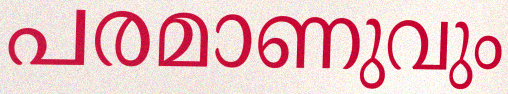
പരമാണുവും